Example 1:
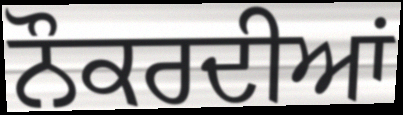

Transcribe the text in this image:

ਨੌਕਰਦੀਆਂ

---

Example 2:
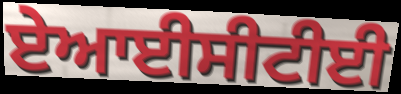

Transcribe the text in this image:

ਏਆਈਸੀਟੀਈ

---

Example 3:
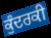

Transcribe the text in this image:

ਕੁੰਦਰਕੀ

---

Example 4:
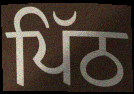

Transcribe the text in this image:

ਪਿੱਠ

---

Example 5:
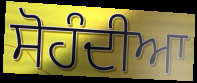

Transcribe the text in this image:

ਸੋਹੰਦੀਆ